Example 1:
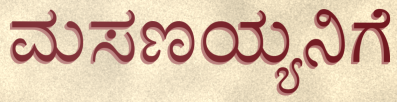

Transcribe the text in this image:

ಮಸಣಯ್ಯನಿಗೆ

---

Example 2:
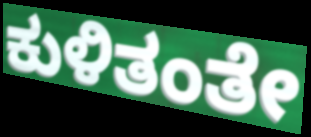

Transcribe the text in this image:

ಕುಳಿತಂತೇ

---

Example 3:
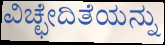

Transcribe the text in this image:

ವಿಚ್ಛೇದಿತೆಯನ್ನು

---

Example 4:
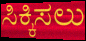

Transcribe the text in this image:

ಸಿಕ್ಕಿಸಲು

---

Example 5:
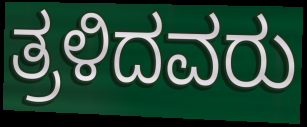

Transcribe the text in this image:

ತ್ರಳಿದವರು